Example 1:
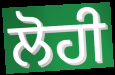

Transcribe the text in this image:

ਲੋਹੀ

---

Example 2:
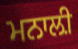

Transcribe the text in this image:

ਮਨਾਲ਼ੀ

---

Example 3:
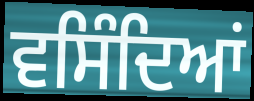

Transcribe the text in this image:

ਵਸਿੰਦਿਆਂ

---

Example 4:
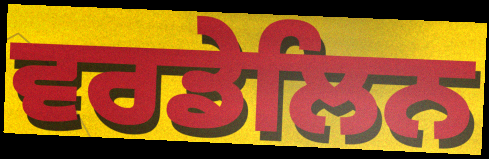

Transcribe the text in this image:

ਵਰਡੇਲਿਨ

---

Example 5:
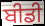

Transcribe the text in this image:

ਬੀਡੀ